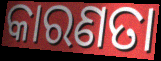
କାରଣତା